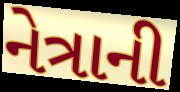
નેત્રાની